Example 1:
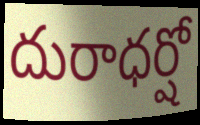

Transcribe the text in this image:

దురాధర్షో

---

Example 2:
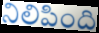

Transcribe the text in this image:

నిలిపింది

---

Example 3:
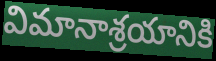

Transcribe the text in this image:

విమానాశ్రయానికి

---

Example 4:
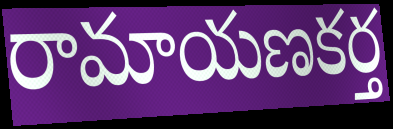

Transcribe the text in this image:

రామాయణకర్త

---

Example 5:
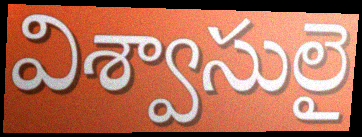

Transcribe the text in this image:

విశ్వాసులై